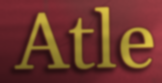
Atle